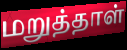
மறுத்தாள்